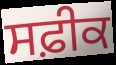
ਸਫ਼ੀਕ